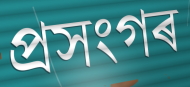
প্ৰসংগৰ